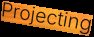
Projecting